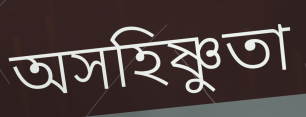
অসহিষ্ণুতা